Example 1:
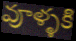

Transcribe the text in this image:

వూళ్ళకి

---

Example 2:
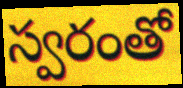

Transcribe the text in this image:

స్వరంతో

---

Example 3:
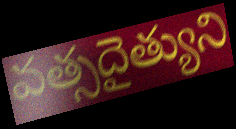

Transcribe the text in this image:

వత్సదైత్యుని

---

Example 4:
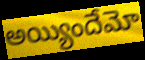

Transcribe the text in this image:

అయ్యిందేమో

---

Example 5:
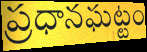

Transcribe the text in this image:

ప్రధానఘట్టం